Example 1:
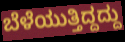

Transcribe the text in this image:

ಬೆಳೆಯುತ್ತಿದ್ದದ್ದು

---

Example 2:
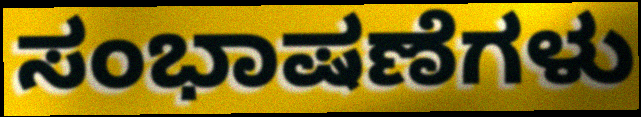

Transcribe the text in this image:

ಸಂಭಾಷಣೆಗಳು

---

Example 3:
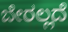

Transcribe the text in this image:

ಬೇರಲ್ಲದೆ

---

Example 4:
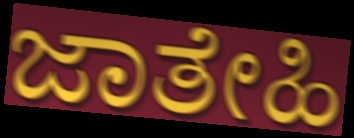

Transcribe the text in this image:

ಜಾತೇಹಿ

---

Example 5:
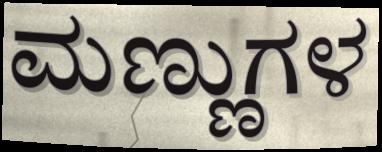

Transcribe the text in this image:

ಮಣ್ಣುಗಳ